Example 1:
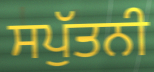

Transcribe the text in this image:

ਸਪੁੱਤਨੀ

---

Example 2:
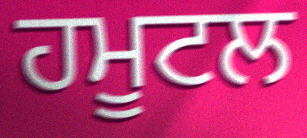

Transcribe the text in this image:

ਹਮੂਟਲ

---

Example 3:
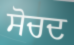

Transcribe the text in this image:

ਸੋਚਦ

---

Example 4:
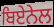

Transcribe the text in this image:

ਬਿਏਨੇਲ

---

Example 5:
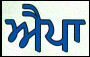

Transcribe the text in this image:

ਐਪਾ